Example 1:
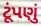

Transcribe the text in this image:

ટૂંપણું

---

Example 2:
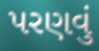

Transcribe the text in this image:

પરણવું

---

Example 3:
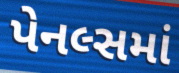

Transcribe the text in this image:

પેનલ્સમાં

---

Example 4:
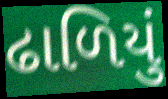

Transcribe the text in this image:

ઢાળિયું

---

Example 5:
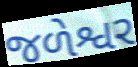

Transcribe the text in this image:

જળેશ્વર